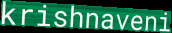
krishnaveni